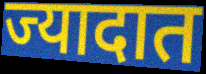
ज्यादात